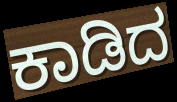
ಕಾಡಿದ